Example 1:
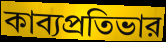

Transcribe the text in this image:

কাব্যপ্রতিভার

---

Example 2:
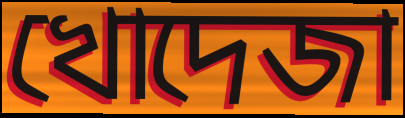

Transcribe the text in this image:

খোদেজা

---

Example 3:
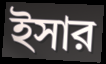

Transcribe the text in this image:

ইসার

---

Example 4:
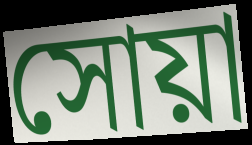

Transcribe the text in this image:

সোয়া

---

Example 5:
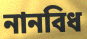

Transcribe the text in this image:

নানবিধ